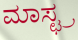
ಮಾಸ್ಟ್ರ